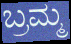
ಬ್ರಮ್ಮ